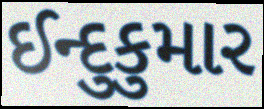
ઈન્દુકુમાર